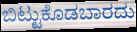
ಬಿಟ್ಟುಕೊಡಬಾರದು